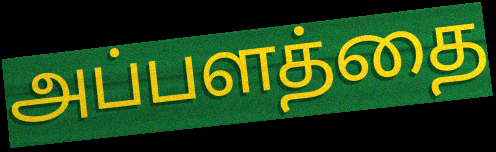
அப்பளத்தை